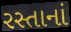
રસ્તાનાં